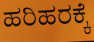
ಹರಿಹರಕ್ಕೆ